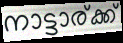
നാട്ടാര്ക്ക്